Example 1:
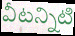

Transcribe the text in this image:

వీటన్నిటి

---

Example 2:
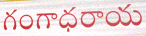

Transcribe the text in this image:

గంగాధరాయ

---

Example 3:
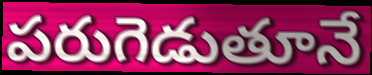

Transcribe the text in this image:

పరుగెడుతూనే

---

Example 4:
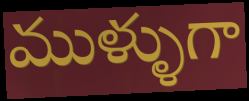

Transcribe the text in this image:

ముళ్ళుగా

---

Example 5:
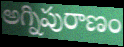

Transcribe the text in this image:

అగ్నిపురాణం